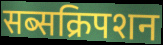
सब्सक्रिपशन